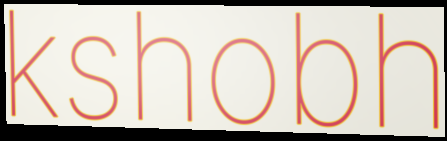
kshobh